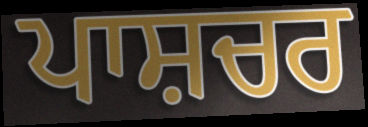
ਪਾਸ਼ਚਰ